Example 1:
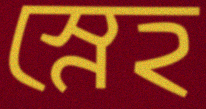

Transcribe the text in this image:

স্নেহ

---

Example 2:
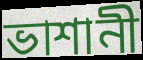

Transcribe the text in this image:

ভাশানী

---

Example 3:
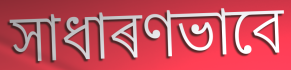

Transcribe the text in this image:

সাধাৰণভাবে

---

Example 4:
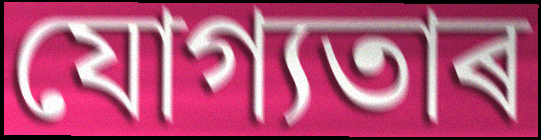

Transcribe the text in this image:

যোগ্যতাৰ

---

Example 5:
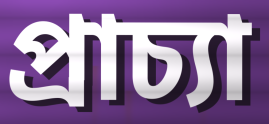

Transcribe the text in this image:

প্ৰাচ্যা